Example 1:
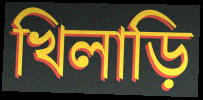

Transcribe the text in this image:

খিলাড়ি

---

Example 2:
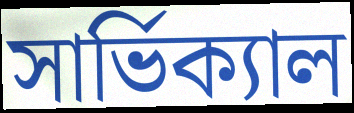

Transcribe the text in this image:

সার্ভিক্যাল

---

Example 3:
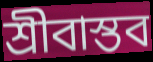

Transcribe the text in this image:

শ্রীবাস্তব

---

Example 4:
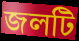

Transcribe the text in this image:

জলটি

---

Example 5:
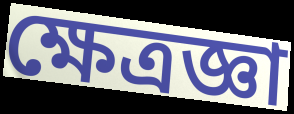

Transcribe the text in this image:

ক্ষেত্রজ্ঞা